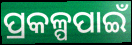
ପ୍ରକଳ୍ପପାଇଁ